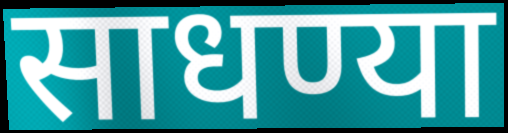
साधण्या